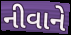
નીવાને